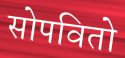
सोपवितो